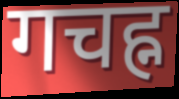
गचह्न